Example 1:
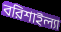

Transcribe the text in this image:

বরিশাইল্যা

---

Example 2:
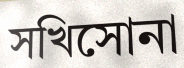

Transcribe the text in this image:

সখিসোনা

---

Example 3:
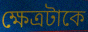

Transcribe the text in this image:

ক্ষেত্রটাকে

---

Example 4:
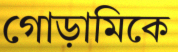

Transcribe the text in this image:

গোড়ামিকে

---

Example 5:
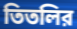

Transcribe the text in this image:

তিতলির